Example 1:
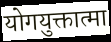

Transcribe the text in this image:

योगयुक्तात्मा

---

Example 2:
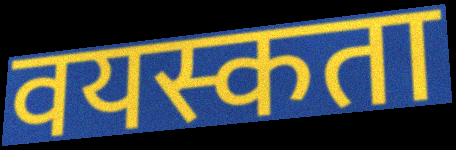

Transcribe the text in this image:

वयस्कता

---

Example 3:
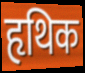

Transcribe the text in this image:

हृथिक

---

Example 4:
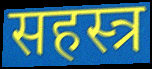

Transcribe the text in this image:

सहस्‍त्र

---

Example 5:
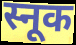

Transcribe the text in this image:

स्नूक